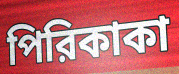
পিরিকাকা